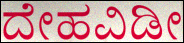
ದೇಹವಿಡೀ